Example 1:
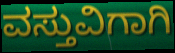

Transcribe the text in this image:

ವಸ್ತುವಿಗಾಗಿ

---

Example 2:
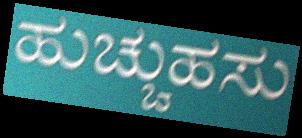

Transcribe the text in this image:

ಹುಚ್ಚುಹಸು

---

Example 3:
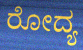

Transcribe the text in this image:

ರೋದ್ಯ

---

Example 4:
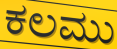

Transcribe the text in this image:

ಕಲಮು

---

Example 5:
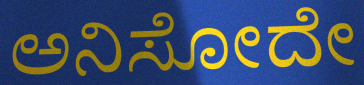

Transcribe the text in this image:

ಅನಿಸೋದೇ